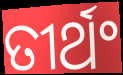
ତୀର୍ଥଂ